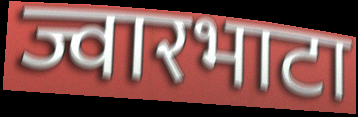
ज्वारभाटा